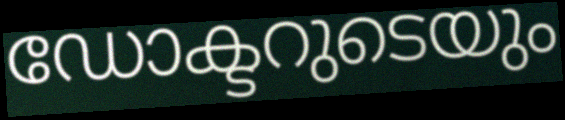
ഡോക്ടറുടെയും